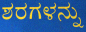
ಶರಗಳನ್ನು